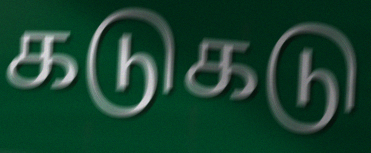
கடுகடு